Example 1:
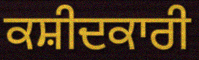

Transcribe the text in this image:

ਕਸ਼ੀਦਕਾਰੀ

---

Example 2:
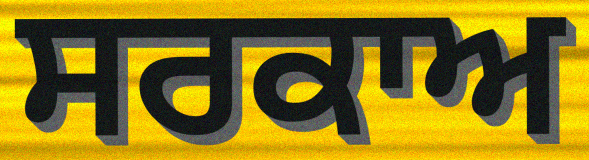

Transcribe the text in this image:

ਸਰਕਾਅ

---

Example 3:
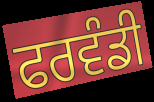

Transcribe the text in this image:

ਫਰਵੰਡੀ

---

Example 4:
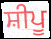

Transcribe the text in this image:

ਸ਼ੀਪੂ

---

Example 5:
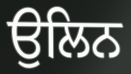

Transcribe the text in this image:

ਉਲਿਨ